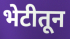
भेटीतून